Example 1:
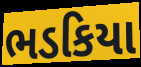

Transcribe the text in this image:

ભડકિયા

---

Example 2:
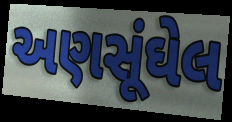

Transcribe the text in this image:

અણસૂંઘેલ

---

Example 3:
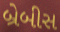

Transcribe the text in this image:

બ્રેબીસ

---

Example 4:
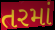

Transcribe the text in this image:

તરમાં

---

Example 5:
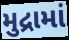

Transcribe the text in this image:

મુદ્રામાં